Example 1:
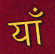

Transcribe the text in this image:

याँ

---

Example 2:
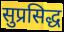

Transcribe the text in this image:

सुप्रसिद्ध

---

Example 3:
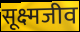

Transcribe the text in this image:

सूक्ष्मजीव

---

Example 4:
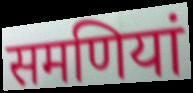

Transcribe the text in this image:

समणियां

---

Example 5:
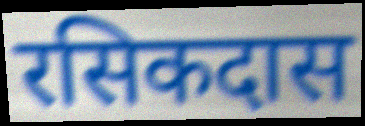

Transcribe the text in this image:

रसिकदास